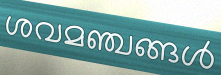
ശവമഞ്ചങ്ങൾ